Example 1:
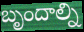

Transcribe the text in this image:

బృందాల్ని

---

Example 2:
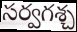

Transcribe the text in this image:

సర్వగశ్చ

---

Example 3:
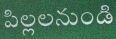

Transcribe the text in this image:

పిల్లలనుండి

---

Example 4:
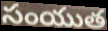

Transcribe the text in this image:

సంయుత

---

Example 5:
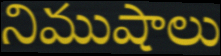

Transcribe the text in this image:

నిముషాలు